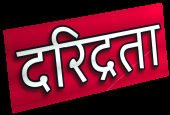
दरिद्रता